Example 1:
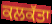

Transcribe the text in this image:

ਕਲਕੱਤਾ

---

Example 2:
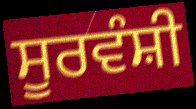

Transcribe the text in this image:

ਸੂਰਵੰਸ਼ੀ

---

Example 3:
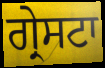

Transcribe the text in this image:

ਗ੍ਰੇਸਟਾ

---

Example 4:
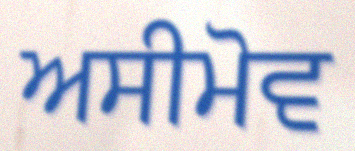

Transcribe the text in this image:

ਅਸੀਮੋਵ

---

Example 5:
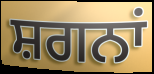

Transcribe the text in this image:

ਸ਼ਗਨਾਂ